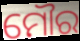
ମୌର